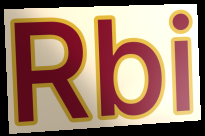
Rbi